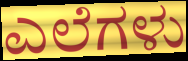
ಎಲೆಗಳು